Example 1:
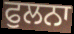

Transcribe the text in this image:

ਫੁਲਨਾ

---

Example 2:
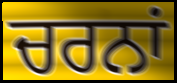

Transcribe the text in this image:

ਚਰਨਾਂ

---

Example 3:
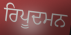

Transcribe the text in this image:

ਰਿਪੂਦਮਨ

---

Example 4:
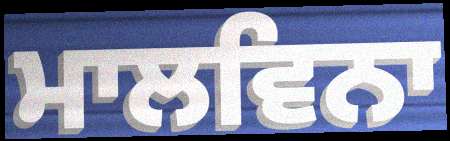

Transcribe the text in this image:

ਮਾਲਵਿਨਾ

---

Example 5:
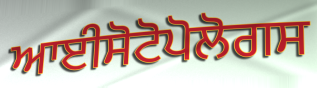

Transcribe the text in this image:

ਆਈਸੋਟੋਪੋਲੋਗਸ